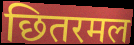
छितरमल